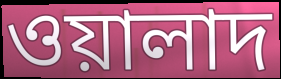
ওয়ালাদ